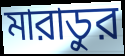
মারাডুর